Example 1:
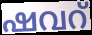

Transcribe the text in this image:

ഷവറ്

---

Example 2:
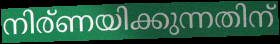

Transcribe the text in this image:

നിര്ണയിക്കുന്നതിന്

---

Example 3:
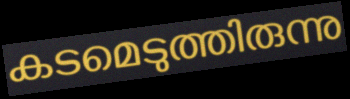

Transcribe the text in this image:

കടമെടുത്തിരുന്നു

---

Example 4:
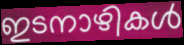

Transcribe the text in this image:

ഇടനാഴികൾ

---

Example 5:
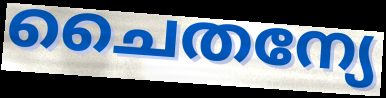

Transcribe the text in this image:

ചൈതന്യേ